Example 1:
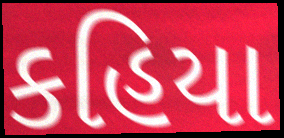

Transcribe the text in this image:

કહિયા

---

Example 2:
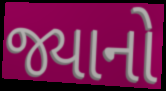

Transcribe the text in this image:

જ્યાનો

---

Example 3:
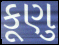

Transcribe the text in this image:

કૂણુ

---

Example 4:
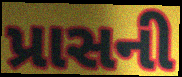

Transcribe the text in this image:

પ્રાસની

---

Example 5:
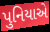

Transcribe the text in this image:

પુનિયાએ